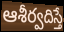
ఆశీర్వదిస్తే